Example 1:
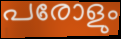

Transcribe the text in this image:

പരോളും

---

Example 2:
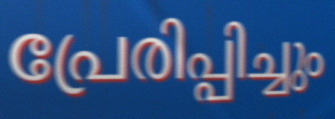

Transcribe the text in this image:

പ്രേരിപ്പിച്ചും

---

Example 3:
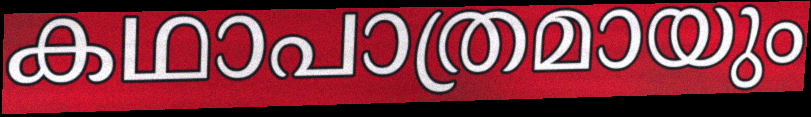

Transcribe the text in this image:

കഥാപാത്രമായും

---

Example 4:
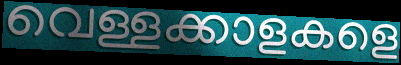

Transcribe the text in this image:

വെള്ളക്കാളകളെ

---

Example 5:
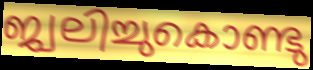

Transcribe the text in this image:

ജ്വലിച്ചുകൊണ്ടു